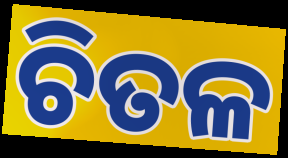
ଚିତଳ